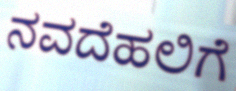
ನವದೆಹಲಿಗೆ